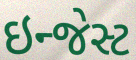
ઇન્જેસ્ટ